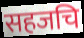
सहजचि